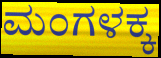
ಮಂಗಳಕ್ಕ